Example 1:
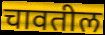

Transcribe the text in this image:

चावतील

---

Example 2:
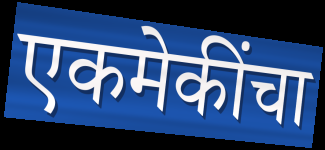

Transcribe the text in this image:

एकमेकींचा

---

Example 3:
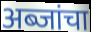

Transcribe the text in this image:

अब्जांचा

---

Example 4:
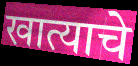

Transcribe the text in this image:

खात्याचे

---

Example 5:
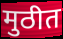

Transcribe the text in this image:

मुठीत